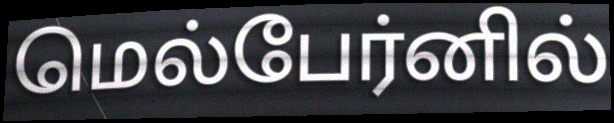
மெல்பேர்னில்